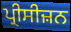
ਪ੍ਰੀਸੀਜ਼ਨ